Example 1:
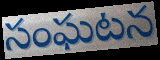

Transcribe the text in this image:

సంఘటన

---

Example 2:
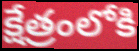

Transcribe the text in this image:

క్షేత్రంలోకి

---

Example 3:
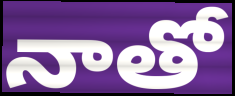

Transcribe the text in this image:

నాతో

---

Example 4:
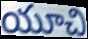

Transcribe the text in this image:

యూచి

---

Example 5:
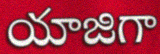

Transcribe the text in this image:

యాజిగా